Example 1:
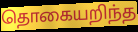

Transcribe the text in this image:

தொகையறிந்த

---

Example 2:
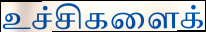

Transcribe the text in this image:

உச்சிகளைக்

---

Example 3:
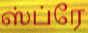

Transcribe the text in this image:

ஸ்ப்ரே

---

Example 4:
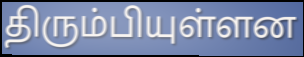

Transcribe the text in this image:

திரும்பியுள்ளன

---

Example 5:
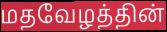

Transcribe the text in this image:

மதவேழத்தின்